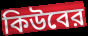
কিউবের